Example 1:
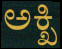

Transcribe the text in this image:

ಅಕ್ಖಿ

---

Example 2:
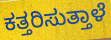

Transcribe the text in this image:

ಕತ್ತರಿಸುತ್ತಾಳೆ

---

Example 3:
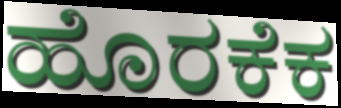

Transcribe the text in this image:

ಹೊರಕೆಕ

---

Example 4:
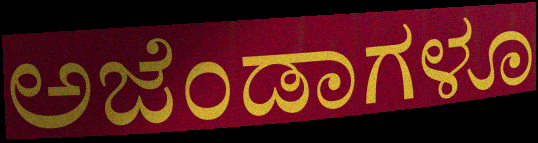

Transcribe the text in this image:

ಅಜೆಂಡಾಗಳೂ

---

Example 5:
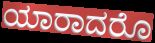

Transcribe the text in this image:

ಯಾರಾದರೊ